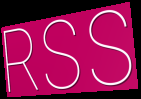
RSS